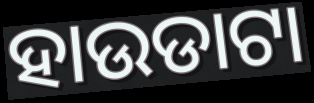
ହାଉଡାଟା